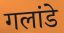
गलांडे